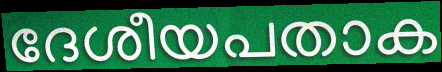
ദേശീയപതാക